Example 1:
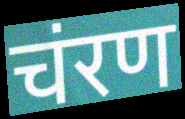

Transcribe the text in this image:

चंरण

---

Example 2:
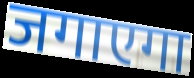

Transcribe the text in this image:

जगाएगा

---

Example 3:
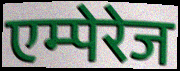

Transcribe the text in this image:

एम्पेरेज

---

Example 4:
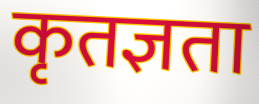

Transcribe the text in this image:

कृतज्ञता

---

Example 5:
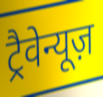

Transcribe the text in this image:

ट्रैवेन्यूज़